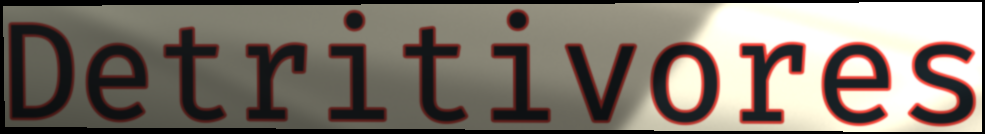
Detritivores